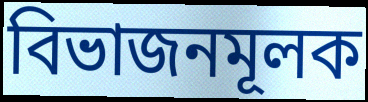
বিভাজনমূলক